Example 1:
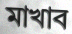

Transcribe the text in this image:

মাখাব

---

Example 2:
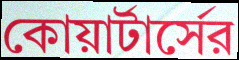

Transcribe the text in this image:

কোয়ার্টার্সের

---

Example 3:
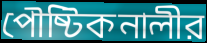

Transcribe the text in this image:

পৌষ্টিকনালীর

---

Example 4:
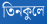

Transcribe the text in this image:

তিনকুলে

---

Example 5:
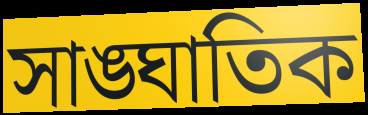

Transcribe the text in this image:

সাঙ্ঘাতিক